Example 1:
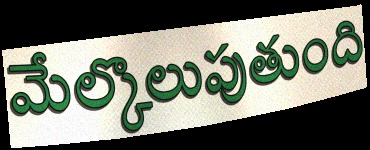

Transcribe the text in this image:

మేల్కొలుపుతుంది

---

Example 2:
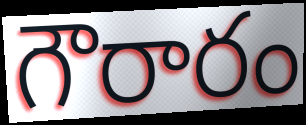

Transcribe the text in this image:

గౌరారం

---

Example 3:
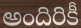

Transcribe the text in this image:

అందిరికీ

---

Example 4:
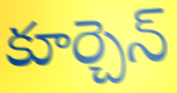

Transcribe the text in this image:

కూర్చెన్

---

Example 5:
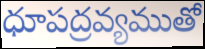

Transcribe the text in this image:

ధూపద్రవ్యముతో